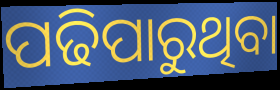
ପଢିପାରୁଥିବା